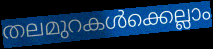
തലമുറകൾക്കെല്ലാം